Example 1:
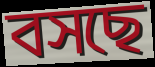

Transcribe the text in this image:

বসছে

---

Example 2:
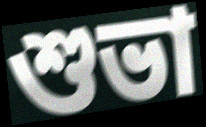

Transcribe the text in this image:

শুভা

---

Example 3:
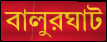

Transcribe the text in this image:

বালুরঘাট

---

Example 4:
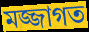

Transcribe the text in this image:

মজ্জাগত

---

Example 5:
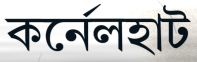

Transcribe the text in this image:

কর্নেলহাট